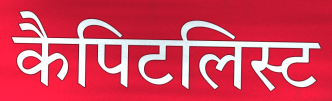
कैपिटलिस्ट